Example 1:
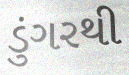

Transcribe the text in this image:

ડુંગરથી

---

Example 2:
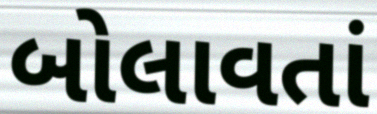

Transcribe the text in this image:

બોલાવતાં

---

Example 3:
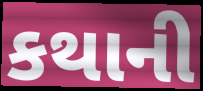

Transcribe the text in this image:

કથાની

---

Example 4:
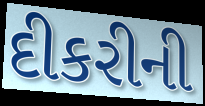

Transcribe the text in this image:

દીકરીની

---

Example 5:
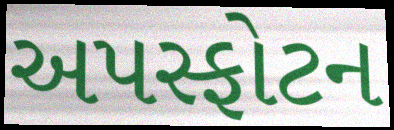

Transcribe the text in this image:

અપસ્ફોટન